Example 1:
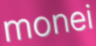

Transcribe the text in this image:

monei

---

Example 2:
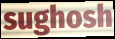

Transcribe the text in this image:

sughosh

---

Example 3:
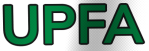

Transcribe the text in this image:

UPFA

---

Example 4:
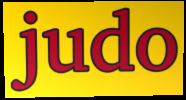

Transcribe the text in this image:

judo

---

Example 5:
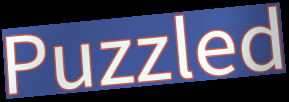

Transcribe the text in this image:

Puzzled